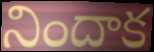
నిందాక